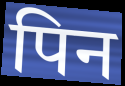
पिन